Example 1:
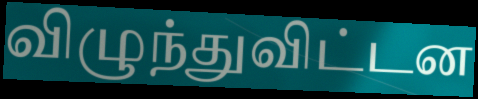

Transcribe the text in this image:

விழுந்துவிட்டன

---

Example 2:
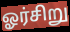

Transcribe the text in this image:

ஓர்சிறு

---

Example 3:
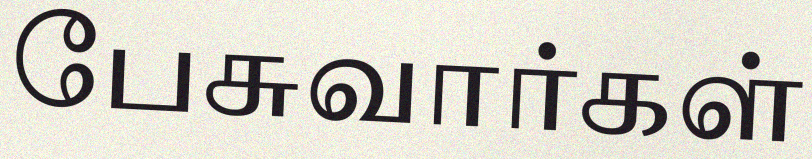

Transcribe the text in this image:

பேசுவார்கள்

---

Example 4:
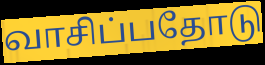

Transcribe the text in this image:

வாசிப்பதோடு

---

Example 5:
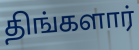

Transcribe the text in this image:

திங்களார்